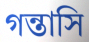
গন্তাসি